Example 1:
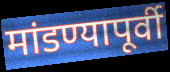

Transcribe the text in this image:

मांडण्यापूर्वी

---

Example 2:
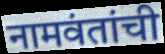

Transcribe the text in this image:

नामवंतांची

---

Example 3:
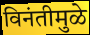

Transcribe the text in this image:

विनंतीमुळे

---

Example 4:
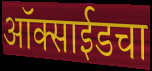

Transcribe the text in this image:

ऑक्साईडचा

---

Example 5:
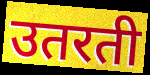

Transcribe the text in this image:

उतरती